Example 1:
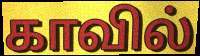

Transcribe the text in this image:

காவில்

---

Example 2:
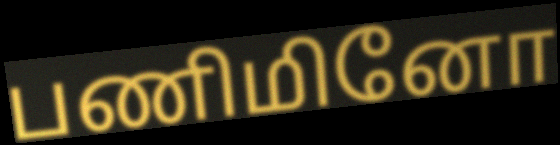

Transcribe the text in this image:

பணிமினோ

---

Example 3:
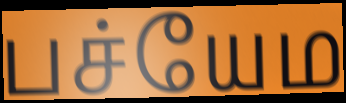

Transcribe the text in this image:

பச்யேம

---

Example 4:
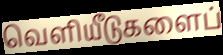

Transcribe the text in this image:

வெளியீடுகளைப்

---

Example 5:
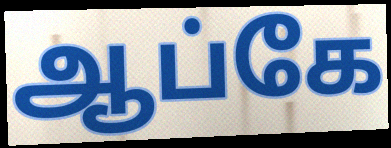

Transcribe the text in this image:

ஆப்கே